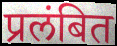
प्रलंबित